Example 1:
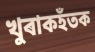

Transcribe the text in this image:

খুৰাকহঁতক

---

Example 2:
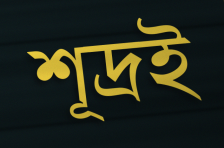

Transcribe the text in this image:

শূদ্ৰই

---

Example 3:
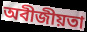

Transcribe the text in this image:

অবীজীয়তা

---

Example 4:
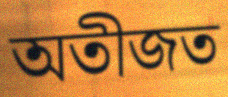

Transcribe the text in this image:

অতীজত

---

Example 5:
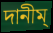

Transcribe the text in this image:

দানীম্